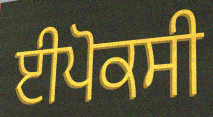
ਈਪੋਕਸੀ